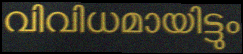
വിവിധമായിട്ടും